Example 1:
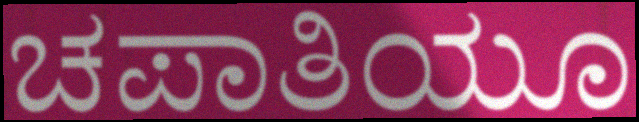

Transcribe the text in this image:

ಚಪಾತಿಯೂ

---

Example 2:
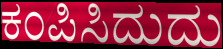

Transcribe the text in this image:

ಕಂಪಿಸಿದುದು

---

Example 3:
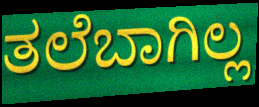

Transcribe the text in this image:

ತಲೆಬಾಗಿಲ್ಲ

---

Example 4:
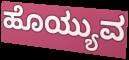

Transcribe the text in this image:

ಹೊಯ್ಯುವ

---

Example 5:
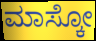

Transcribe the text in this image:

ಮಾಸ್ಕೋ